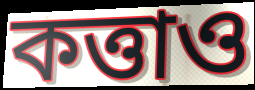
কত্তাও